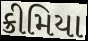
ક્રીમિયા